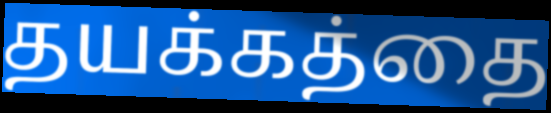
தயக்கத்தை